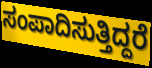
ಸಂಪಾದಿಸುತ್ತಿದ್ದರೆ